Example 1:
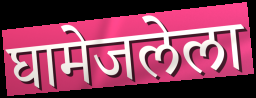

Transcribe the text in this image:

घामेजलेला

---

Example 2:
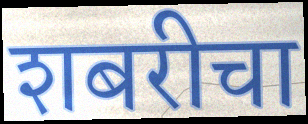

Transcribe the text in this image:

शबरीचा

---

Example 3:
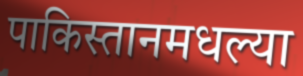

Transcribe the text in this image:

पाकिस्तानमधल्या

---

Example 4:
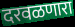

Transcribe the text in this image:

दरवळणारा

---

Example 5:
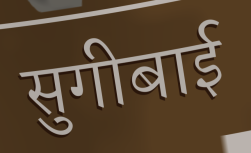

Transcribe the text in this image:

सुगीबाई